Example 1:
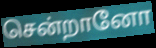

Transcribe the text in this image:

சென்றானோ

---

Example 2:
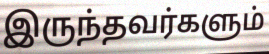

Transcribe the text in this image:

இருந்தவர்களும்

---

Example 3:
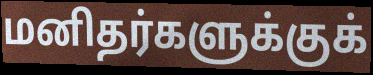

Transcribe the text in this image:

மனிதர்களுக்குக்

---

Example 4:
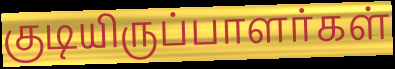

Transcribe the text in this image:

குடியிருப்பாளர்கள்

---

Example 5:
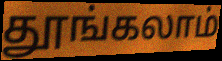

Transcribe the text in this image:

தூங்கலாம்